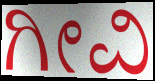
ಗೀವಿ